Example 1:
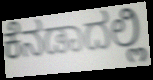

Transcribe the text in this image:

ಕೆನಡಾದಲ್ಲಿ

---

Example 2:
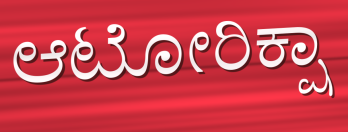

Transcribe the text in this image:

ಆಟೋರಿಕ್ಷಾ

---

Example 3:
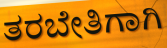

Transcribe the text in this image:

ತರಬೇತಿಗಾಗಿ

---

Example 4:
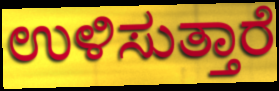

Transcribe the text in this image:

ಉಳಿಸುತ್ತಾರೆ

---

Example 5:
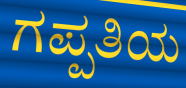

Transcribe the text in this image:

ಗಪ್ಪತಿಯ